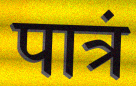
पात्रं